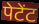
पेटेंट